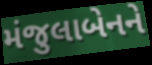
મંજુલાબેનને